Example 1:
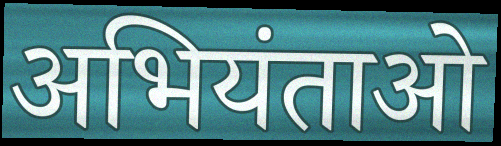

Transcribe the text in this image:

अभियंताओ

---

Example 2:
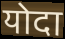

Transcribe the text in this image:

योदा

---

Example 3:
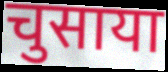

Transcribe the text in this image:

चुसाया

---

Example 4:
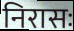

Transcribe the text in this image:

निरासः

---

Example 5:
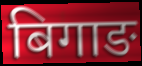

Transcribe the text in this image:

बिगाङ